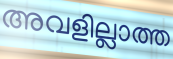
അവളില്ലാത്ത